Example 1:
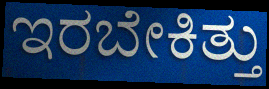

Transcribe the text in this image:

ಇರಬೇಕಿತ್ತು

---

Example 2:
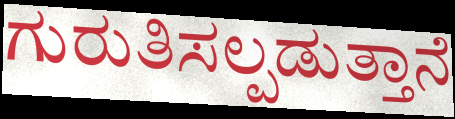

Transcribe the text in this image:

ಗುರುತಿಸಲ್ಪಡುತ್ತಾನೆ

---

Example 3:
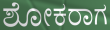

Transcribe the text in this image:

ಶೋಕರಾಗ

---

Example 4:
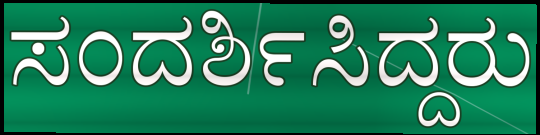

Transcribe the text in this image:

ಸಂದರ್ಶಿಸಿದ್ದರು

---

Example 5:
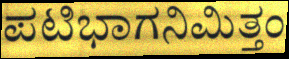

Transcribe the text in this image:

ಪಟಿಭಾಗನಿಮಿತ್ತಂ